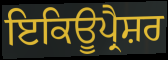
ਇਕਿਊਪ੍ਰੈਸ਼ਰ